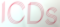
ICDs